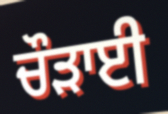
ਚੌੜਾਈ